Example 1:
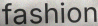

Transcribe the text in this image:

fashion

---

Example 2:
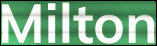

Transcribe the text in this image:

Milton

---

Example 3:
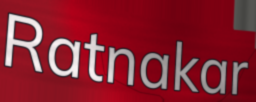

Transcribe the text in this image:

Ratnakar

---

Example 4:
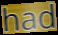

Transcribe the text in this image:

had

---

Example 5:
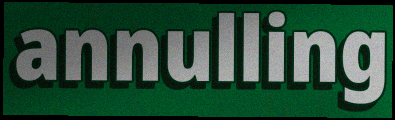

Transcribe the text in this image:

annulling